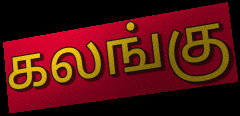
கலங்கு